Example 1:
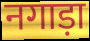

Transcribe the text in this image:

नगाड़ा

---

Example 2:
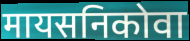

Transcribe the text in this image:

मायसनिकोवा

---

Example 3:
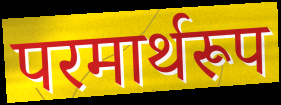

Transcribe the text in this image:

परमार्थरूप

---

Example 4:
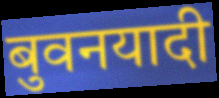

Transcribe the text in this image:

बुवनयादी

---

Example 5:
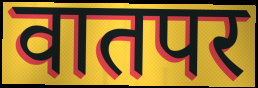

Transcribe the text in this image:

वातपर